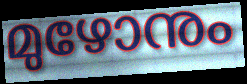
മുഴോനും